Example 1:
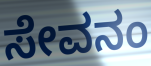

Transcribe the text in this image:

ಸೇವನಂ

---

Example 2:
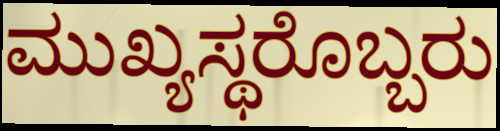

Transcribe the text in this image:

ಮುಖ್ಯಸ್ಥರೊಬ್ಬರು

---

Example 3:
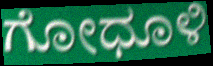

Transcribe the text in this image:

ಗೋಧೂಳಿ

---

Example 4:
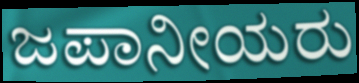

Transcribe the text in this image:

ಜಪಾನೀಯರು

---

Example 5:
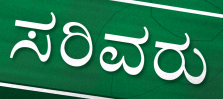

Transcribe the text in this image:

ಸರಿವರು